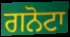
ਗਨੋਟਾ